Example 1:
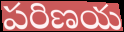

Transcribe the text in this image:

పరిణయ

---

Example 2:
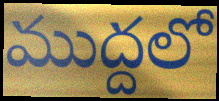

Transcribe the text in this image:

ముద్దలో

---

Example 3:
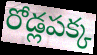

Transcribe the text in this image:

రోడ్లపక్క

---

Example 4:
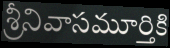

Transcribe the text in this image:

శ్రీనివాసమూర్తికి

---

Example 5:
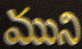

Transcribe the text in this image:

ముని